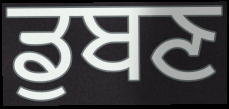
ਡੁਬਣ